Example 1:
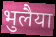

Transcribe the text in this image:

भुलैया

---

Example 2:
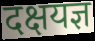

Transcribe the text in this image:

दक्षयज्ञ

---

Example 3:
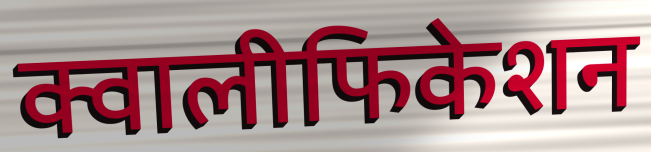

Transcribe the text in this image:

क्वालीफिकेशन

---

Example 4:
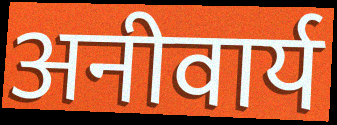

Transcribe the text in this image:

अनीवार्य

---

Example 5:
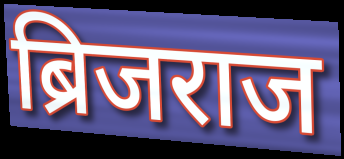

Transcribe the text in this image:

ब्रिजराज